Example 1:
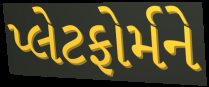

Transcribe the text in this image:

પ્લેટફોર્મને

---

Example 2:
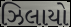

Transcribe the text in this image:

ઝિલાયો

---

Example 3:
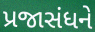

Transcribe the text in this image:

પ્રજાસંધને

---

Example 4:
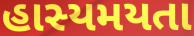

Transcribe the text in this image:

હાસ્યમયતા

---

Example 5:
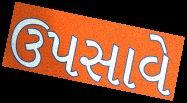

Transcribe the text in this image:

ઉપસાવે